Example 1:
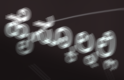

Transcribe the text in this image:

ಹೈಸ್ಕೂಲ್ನಲ್ಲಿ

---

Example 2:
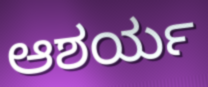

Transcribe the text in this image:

ಆಶರ್ಯ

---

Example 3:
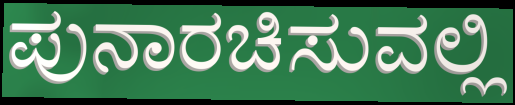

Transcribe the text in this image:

ಪುನಾರಚಿಸುವಲ್ಲಿ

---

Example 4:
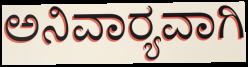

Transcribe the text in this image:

ಅನಿವಾರ‍್ಯವಾಗಿ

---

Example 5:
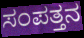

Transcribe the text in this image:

ಸಂಪತ್ತನ